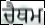
ਚੈਥਮ